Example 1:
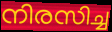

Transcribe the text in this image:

നിരസിച്ച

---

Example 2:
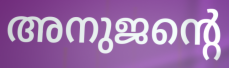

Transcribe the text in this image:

അനുജന്റെ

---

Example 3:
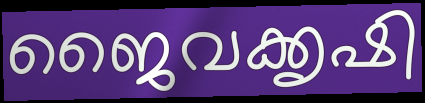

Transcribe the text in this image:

ജൈവക്കൃഷി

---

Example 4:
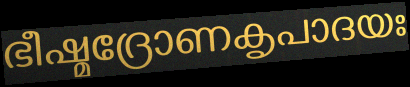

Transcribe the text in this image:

ഭീഷ്മദ്രോണകൃപാദയഃ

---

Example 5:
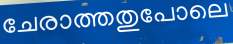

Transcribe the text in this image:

ചേരാത്തതുപോലെ